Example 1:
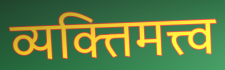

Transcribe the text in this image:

व्यक्तिमत्त्व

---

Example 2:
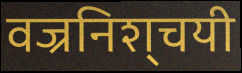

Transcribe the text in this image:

वज्रनिश्चयी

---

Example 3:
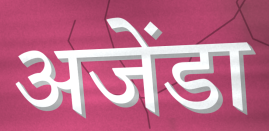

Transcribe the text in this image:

अजेंडा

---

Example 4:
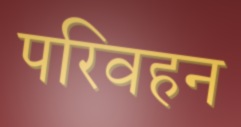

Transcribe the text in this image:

परिवहन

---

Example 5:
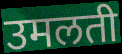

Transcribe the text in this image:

उमलती